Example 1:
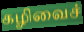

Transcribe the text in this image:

கழிவைச்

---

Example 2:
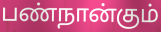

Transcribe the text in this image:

பண்நான்கும்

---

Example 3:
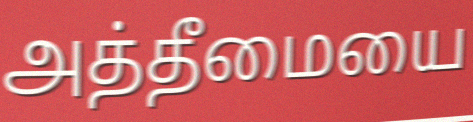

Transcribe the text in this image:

அத்தீமையை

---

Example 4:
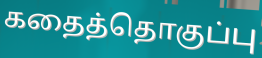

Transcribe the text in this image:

கதைத்தொகுப்பு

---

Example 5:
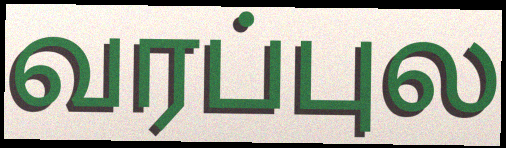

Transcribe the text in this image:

வரப்புல